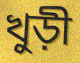
খুড়ী